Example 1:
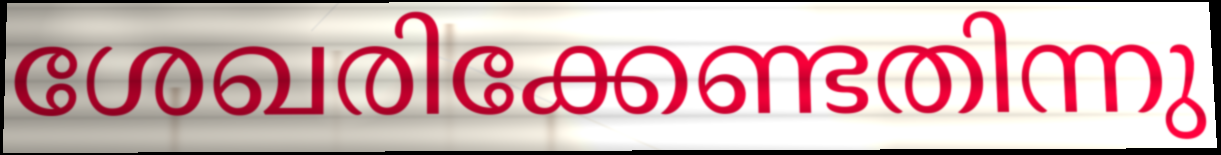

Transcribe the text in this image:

ശേഖരിക്കേണ്ടതിന്നു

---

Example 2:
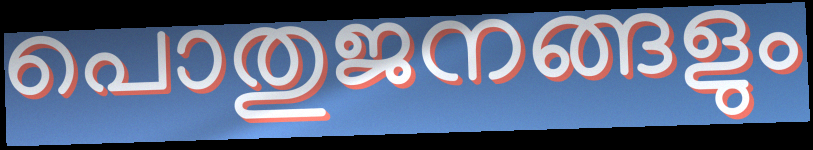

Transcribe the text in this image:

പൊതുജനങ്ങളും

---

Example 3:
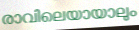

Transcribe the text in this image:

രാവിലെയായാലും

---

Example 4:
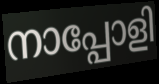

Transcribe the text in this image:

നാപ്പോളി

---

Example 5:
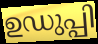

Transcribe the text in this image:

ഉഡുപ്പി